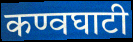
कण्वघाटी